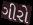
ગીરો